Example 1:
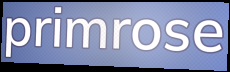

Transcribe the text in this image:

primrose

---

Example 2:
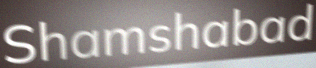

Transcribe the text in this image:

Shamshabad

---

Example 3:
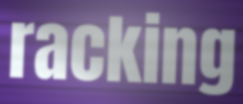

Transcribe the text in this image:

racking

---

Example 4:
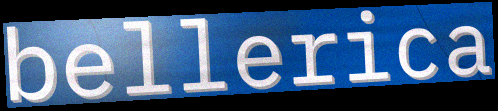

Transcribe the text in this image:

bellerica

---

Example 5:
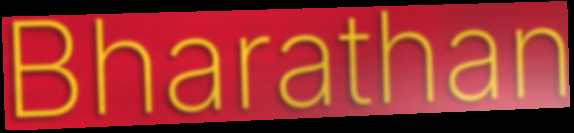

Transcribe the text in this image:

Bharathan